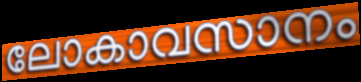
ലോകാവസാനം